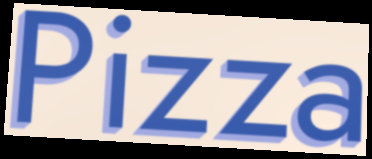
Pizza